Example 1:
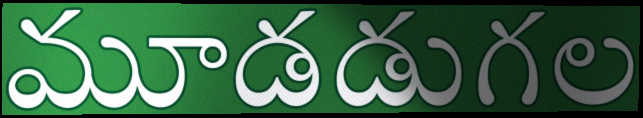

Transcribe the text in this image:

మూడడుగల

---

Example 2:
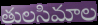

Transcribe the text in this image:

తులసిమాల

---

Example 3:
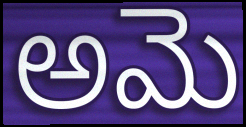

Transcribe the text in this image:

అమె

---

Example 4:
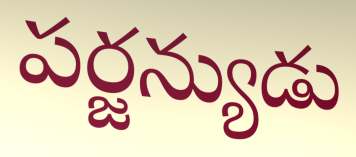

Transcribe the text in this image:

పర్జన్యుడు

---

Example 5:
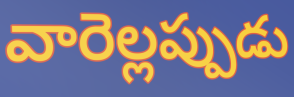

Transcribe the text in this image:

వారెల్లప్పుడు